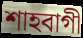
শাহবাগী